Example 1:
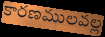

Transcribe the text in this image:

కారణములవల్ల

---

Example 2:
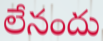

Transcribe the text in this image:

లేనందు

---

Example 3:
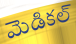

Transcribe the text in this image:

మెడికల్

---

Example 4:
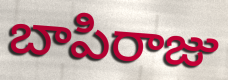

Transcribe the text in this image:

బాపిరాజు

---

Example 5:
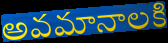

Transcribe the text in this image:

అవమానాలకి